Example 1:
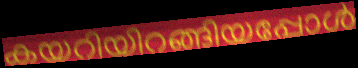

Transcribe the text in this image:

കയറിയിറങ്ങിയപ്പോൾ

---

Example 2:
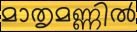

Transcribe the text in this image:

മാതൃമണ്ണിൽ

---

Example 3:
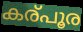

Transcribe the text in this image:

കര്പൂര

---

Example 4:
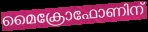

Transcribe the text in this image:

മൈക്രോഫോണിന്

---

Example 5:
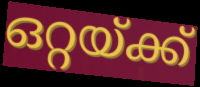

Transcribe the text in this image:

ഒറ്റയ്ക്ക്